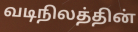
வடிநிலத்தின்